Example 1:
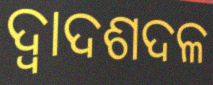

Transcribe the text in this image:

ଦ୍ୱାଦଶଦଳ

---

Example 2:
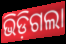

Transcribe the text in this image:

ଭିଡ଼ିଗଲା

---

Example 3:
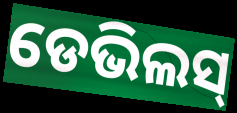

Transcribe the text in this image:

ଡେଭିଲସ୍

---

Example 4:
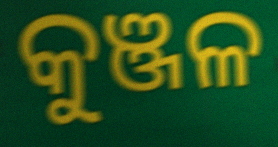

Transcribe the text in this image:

କୁଞ୍ଜଳ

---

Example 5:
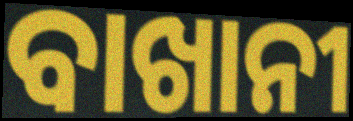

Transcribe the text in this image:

ବାଖାନୀ